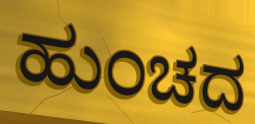
ಹುಂಚದ